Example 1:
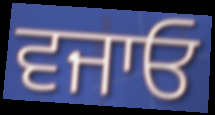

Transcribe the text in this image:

ਵਜਾਓ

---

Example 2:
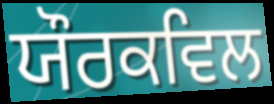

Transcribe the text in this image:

ਯੌਰਕਵਿਲ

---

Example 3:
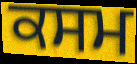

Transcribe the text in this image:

ਕਸਮ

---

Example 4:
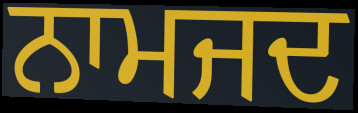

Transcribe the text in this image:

ਨਾਮਜਦ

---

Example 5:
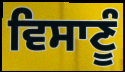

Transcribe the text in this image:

ਵਿਸਾਣੂੰ